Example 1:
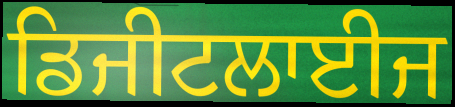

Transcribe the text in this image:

ਡਿਜੀਟਲਾਈਜ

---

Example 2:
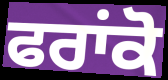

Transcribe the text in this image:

ਫਰਾਂਕੋ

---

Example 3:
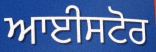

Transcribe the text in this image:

ਆਈਸਟੋਰ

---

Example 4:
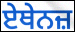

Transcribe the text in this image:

ਏਥੇਨਜ਼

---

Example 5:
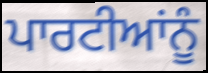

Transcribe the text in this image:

ਪਾਰਟੀਆਂਨੂੰ